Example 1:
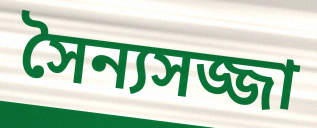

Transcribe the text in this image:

সৈন্যসজ্জা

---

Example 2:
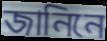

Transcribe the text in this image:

জানিনে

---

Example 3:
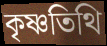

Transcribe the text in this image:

কৃষ্ণতিথি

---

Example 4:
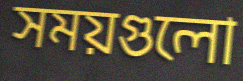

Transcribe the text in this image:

সময়গুলো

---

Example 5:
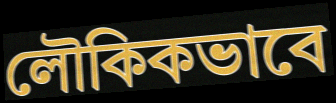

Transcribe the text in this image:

লৌকিকভাবে